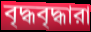
বৃদ্ধবৃদ্ধারা